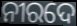
ନୀରଦେ